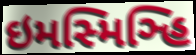
ઇમસ્મિઞ્હિ